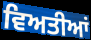
ਵਿਅਤੀਆਂ